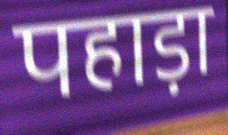
पहाड़ा